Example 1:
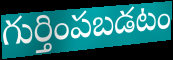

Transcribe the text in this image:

గుర్తింపబడటం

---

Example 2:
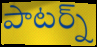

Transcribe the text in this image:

పాటర్న్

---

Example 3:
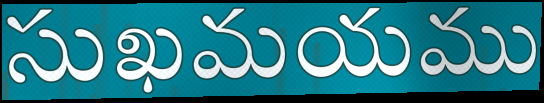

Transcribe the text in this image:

సుఖమయము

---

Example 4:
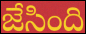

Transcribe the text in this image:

జేసింది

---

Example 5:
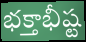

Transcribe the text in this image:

భక్తాభీష్ట